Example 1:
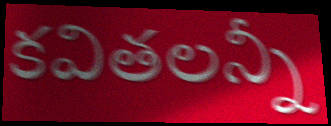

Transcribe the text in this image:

కవితలన్నీ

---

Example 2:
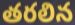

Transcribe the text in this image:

తరలిన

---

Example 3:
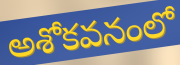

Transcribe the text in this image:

అశోకవనంలో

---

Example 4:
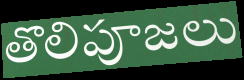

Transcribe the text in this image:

తొలిపూజలు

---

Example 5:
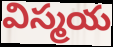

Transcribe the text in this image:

విస్మయ